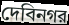
দেবিনগর